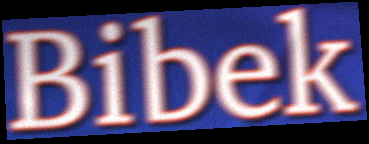
Bibek